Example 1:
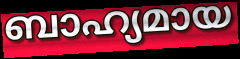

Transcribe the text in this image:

ബാഹ്യമായ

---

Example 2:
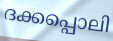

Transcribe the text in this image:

ദക്കപ്പൊലി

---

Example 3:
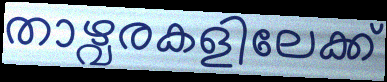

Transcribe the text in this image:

താഴ്വരകളിലേക്ക്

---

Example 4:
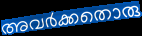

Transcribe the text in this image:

അവർക്കതൊരു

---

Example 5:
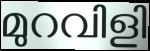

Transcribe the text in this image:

മുറവിളി